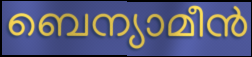
ബെന്യാമീൻ